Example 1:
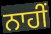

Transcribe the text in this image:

ਨਾਹੀਂ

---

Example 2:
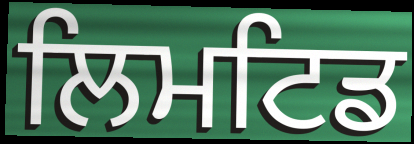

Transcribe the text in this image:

ਲਿਮਟਿਡ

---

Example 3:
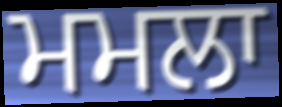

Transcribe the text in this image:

ਮਮਲਾ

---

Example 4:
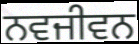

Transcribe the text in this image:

ਨਵਜੀਵਨ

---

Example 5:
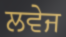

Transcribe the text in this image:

ਲਵੇਜ